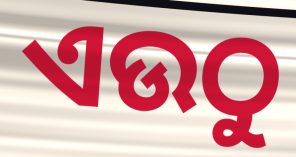
ଏଉଠୁ